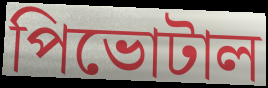
পিভোটাল